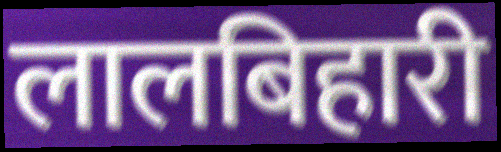
लालबिहारी